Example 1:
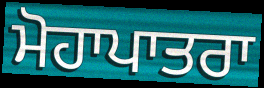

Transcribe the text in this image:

ਮੋਹਾਪਾਤਰਾ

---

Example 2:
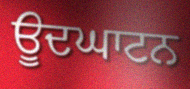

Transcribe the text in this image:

ਊਦਘਾਟਨ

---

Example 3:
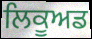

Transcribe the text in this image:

ਲਿਕੂਅਡ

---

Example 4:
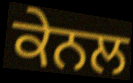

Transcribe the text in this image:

ਕੇਨਲ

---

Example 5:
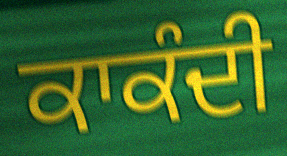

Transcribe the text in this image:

ਕਾਕੰਦੀ